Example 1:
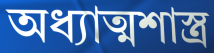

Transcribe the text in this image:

অধ্যাত্মশাস্ত্র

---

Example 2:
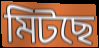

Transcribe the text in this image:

মিটছে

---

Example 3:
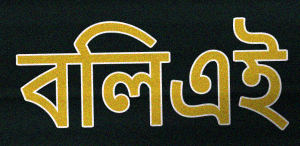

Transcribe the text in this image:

বলিএই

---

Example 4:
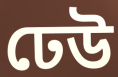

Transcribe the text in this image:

ঢেউ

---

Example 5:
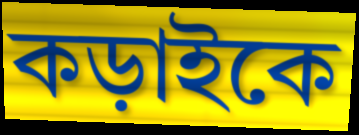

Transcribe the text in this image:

কড়াইকে